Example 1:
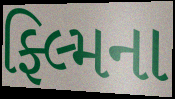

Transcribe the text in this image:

ફ્લ્મિના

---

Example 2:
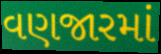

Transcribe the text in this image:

વણજારમાં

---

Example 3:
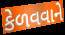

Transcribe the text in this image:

કેળવવાને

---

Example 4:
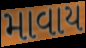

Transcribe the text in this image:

માવાય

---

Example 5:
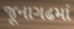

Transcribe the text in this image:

જૂનાગઢમાં